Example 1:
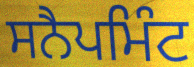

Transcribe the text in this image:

ਸਨੈਪਮਿੰਟ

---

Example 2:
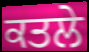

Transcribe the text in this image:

ਕਤਲੇ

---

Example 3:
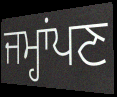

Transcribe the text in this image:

ਜਮ੍ਹਾਂਪਣ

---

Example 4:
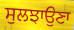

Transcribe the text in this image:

ਸੁਲਝਾਉਣਾ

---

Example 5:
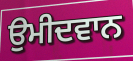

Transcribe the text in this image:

ਉਮੀਦਵਾਨ